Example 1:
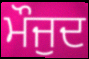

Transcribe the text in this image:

ਮੌਜੁਦ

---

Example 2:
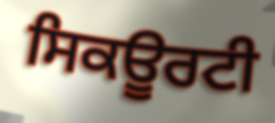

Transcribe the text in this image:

ਸਿਕਊਰਟੀ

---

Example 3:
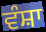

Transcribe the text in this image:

ਵੰਸ਼ਾ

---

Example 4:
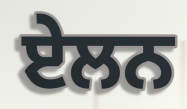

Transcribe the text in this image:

ਏਲਨ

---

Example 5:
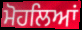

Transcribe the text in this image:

ਮੋਹਲਿਆਂ